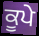
ਕੂਪੇ